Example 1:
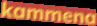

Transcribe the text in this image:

kammena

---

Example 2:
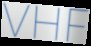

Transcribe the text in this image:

VHF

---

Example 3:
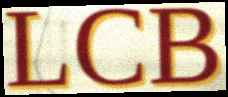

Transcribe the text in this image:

LCB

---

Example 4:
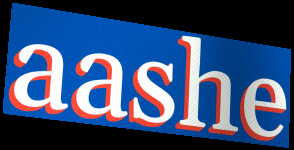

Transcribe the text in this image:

aashe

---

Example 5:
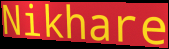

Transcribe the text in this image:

Nikhare